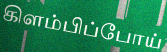
கிளம்பிப்போய்